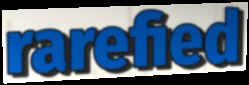
rarefied